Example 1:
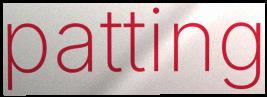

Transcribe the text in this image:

patting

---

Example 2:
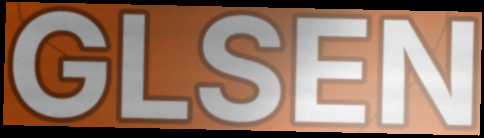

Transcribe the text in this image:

GLSEN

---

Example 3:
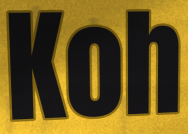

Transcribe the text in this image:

Koh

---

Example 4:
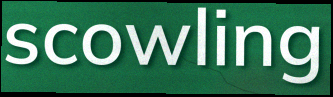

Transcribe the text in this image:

scowling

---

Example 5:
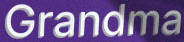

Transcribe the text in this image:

Grandma